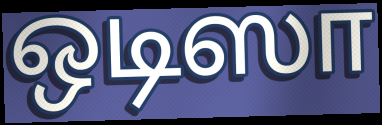
ஒடிஸா